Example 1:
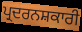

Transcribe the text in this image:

ਪ੍ਰਦਰਨਸ਼ਕਾਰੀ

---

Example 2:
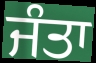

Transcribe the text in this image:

ਜੰਤਾ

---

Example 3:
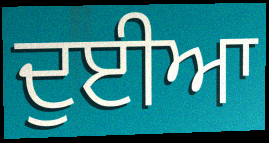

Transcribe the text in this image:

ਦੁਈਆ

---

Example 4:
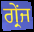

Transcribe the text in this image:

ਗ੍ਰੇਂਜ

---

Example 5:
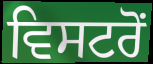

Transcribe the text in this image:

ਵਿਸਟਰੋਂ